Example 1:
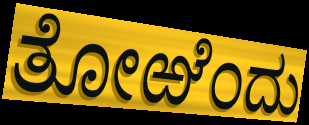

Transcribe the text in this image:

ತೋಱೆಂದು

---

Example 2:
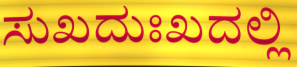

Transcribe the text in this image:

ಸುಖದುಃಖದಲ್ಲಿ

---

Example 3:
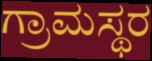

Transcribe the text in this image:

ಗ್ರಾಮಸ್ಥರ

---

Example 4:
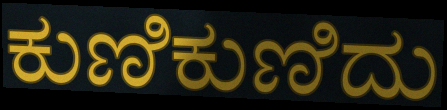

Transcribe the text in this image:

ಕುಣಿಕುಣಿದು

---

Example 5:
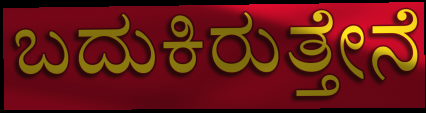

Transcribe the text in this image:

ಬದುಕಿರುತ್ತೇನೆ